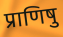
प्राणिषु